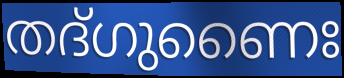
തദ്ഗുണൈഃ